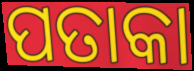
ପତାକା